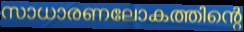
സാധാരണലോകത്തിന്റെ